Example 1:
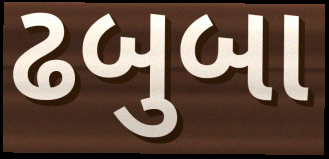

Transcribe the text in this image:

ઢબુબા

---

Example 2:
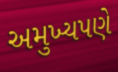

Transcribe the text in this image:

અમુખ્યપણે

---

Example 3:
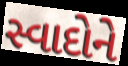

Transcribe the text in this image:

સ્વાદોને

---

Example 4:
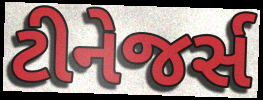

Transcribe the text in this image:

ટીનેજર્સ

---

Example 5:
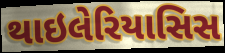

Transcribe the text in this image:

થાઇલેરિયાસિસ